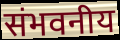
संभवनीय